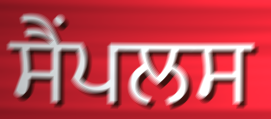
ਸੈਂਪਲਸ